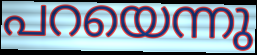
പറയെന്നു